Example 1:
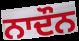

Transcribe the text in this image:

ਨਾਦੌਨ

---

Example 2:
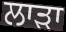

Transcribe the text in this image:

ਲਾੜਾ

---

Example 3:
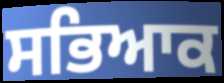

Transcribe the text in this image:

ਸਭਿਆਕ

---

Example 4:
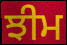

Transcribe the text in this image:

ਝੀਮ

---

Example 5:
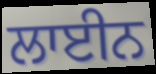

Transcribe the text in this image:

ਲਾਈਨ